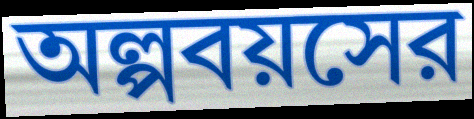
অল্পবয়সের